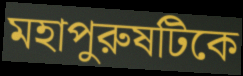
মহাপুরুষটিকে